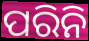
ପରିନି